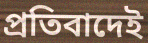
প্রতিবাদেই